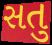
સતુ